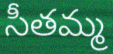
సీతమ్మ